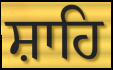
ਸ਼ਾਹਿ